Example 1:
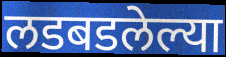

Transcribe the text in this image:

लडबडलेल्या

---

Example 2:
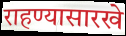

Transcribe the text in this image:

राहण्यासारखे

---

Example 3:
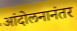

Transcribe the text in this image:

आंदोलनानंतर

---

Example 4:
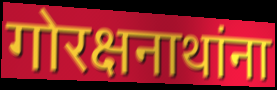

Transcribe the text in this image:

गोरक्षनाथांना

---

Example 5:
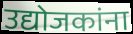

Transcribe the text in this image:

उद्योजकांना